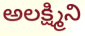
అలక్ష్మిని